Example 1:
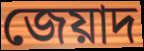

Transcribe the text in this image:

জেয়াদ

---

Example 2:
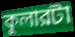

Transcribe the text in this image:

কুলারটা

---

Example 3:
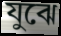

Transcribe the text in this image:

যুঝে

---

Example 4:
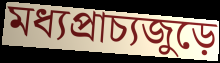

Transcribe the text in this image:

মধ্যপ্রাচ্যজুড়ে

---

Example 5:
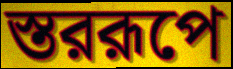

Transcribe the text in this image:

স্তররূপে